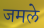
जमले